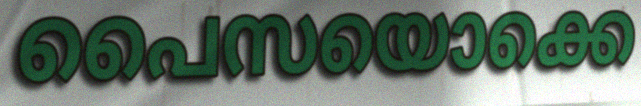
പൈസയൊക്കെ